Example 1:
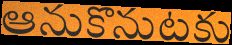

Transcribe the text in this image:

ఆనుకొనుటకు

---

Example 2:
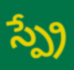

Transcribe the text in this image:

స్ప్రే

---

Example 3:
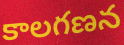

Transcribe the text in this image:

కాలగణన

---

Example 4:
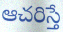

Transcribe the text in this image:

ఆచరిస్తే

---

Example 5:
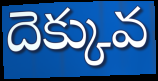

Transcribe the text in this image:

దెక్కువ